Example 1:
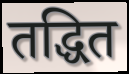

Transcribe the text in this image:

तद्धित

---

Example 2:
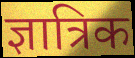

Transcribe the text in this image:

ज्ञात्रिक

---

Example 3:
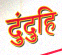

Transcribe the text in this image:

दुंदुहि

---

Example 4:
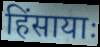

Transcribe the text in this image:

हिंसायाः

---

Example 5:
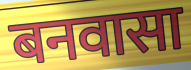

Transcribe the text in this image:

बनवासा